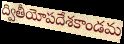
ద్వితీయోపదేశకాండమ